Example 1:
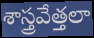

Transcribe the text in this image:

శాస్త్రవేత్తలా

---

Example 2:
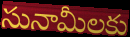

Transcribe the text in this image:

సునామీలకు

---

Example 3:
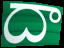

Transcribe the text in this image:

దా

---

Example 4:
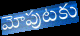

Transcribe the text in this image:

మోపుటకు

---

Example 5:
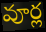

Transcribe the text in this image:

వూర్ల